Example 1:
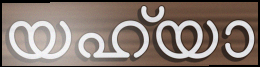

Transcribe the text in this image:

യഹ്‌യാ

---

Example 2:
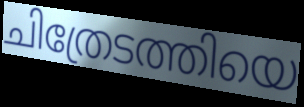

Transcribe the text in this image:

ചിത്രേടത്തിയെ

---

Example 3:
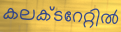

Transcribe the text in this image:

കലക്ടറേറ്റിൽ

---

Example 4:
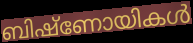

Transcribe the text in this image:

ബിഷ്ണോയികൾ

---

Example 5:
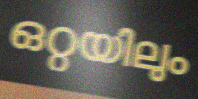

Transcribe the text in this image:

ഒറ്റയിലും